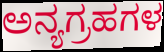
ಅನ್ಯಗ್ರಹಗಳ